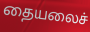
தையலைச்